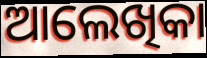
ଆଲେଖିକା